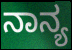
ನಾನ್ಯ